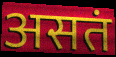
असतं